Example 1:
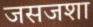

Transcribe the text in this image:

जसजशा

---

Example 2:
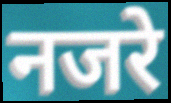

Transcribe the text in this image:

नजरे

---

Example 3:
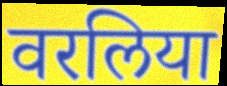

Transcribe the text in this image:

वरलिया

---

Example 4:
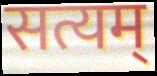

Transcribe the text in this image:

सत्यम्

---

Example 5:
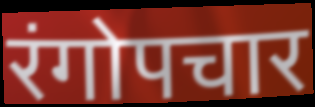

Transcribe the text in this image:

रंगोपचार